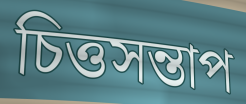
চিত্তসন্তাপ